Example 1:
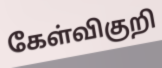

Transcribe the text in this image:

கேள்விகுறி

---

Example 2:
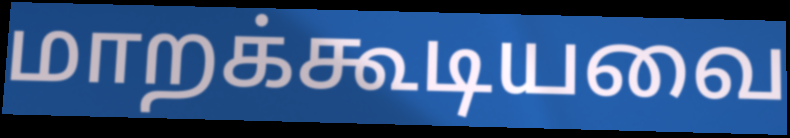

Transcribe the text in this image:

மாறக்கூடியவை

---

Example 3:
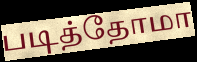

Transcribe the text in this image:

படித்தோமா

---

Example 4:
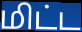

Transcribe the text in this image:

மிட்ட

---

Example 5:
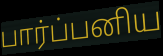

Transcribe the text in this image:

பார்ப்பனிய